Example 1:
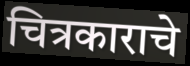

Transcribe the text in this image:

चित्रकाराचे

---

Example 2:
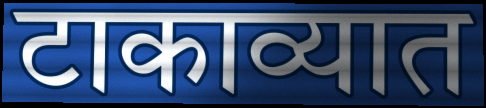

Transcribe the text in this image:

टाकाव्यात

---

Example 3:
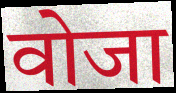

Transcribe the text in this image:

वोजा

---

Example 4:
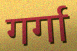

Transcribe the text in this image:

गर्गा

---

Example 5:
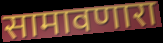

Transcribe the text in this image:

सामावणारा